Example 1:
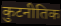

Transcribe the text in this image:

कुटनीतिक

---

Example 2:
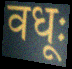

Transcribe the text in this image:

वधूः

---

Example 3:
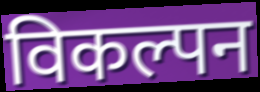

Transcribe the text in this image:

विकल्पन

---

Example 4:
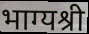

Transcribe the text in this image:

भाग्यश्री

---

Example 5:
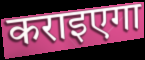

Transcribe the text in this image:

कराइएगा